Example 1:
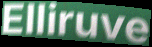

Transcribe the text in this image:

Elliruve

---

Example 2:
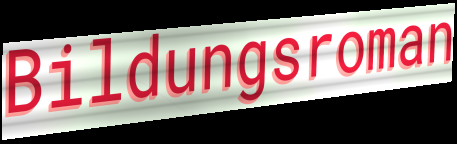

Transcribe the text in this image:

Bildungsroman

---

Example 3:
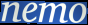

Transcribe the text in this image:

nemo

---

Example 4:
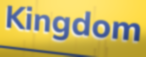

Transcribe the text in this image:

Kingdom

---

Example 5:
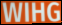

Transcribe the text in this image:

WIHG